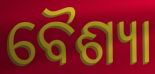
ବୈଶ୍ଯା